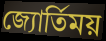
জ্যোর্তিময়